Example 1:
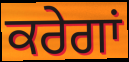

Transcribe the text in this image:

ਕਰੇਗਾਂ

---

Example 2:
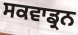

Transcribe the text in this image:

ਸਕਵਾਡ੍ਰਨ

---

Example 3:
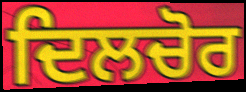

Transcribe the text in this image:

ਦਿਲਚੋਰ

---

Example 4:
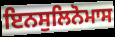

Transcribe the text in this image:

ਇਨਸੁਲਿਨੋਮਾਸ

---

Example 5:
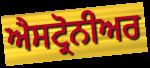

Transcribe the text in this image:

ਐਸਟ੍ਰੋਨੀਅਰ